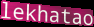
lekhatao